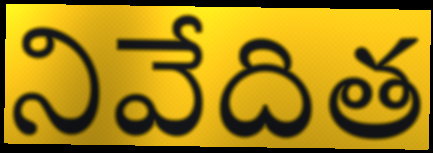
నివేదిత